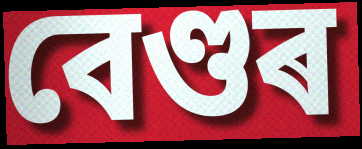
বেণ্ডৰ